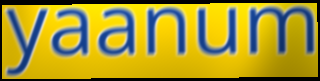
yaanum